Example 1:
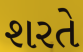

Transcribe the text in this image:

શરતે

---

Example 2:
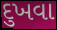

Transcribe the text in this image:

દુખવા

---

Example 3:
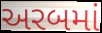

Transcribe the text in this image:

અરબમાં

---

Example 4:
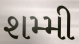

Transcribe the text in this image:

શમ્મી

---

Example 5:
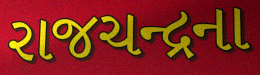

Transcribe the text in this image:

રાજચન્દ્રના